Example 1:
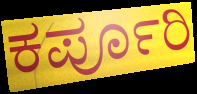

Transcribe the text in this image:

ಕರ್ಪೂರಿ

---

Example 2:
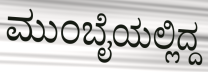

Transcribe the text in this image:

ಮುಂಬೈಯಲ್ಲಿದ್ದ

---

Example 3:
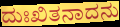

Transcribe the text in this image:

ದುಃಖಿತನಾದನು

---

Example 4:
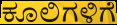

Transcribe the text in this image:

ಕೂಲಿಗಳಿಗೆ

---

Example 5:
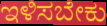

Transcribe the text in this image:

ಇಳಿಸಬೇಕು